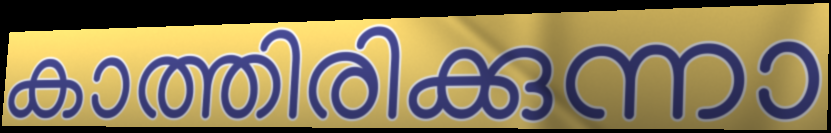
കാത്തിരിക്കുന്നാ